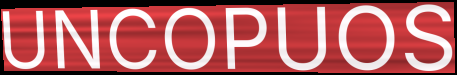
UNCOPUOS